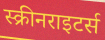
स्क्रीनराइटर्स